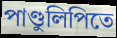
পাণ্ডুলিপিতে